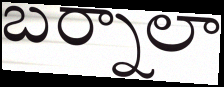
బర్నాలా